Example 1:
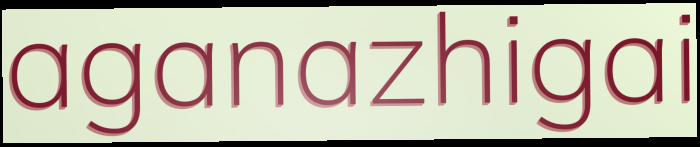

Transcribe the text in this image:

aganazhigai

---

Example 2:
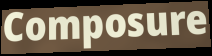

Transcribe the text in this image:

Composure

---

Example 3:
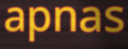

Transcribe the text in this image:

apnas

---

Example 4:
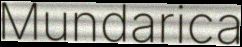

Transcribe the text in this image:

Mundarica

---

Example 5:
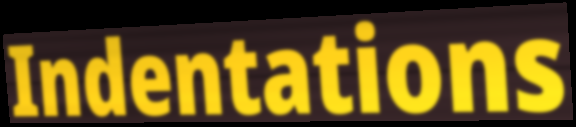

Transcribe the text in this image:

Indentations